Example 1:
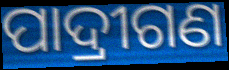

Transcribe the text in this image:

ପାଦ୍ରୀଗଣ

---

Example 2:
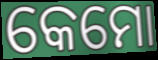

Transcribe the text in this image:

କେମୋ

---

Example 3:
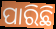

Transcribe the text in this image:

ପାରିଛି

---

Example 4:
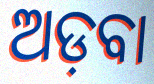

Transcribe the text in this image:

ଅଡ଼ବା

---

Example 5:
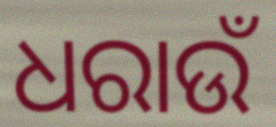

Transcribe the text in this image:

ଧରାଉଁ